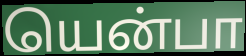
யென்பா